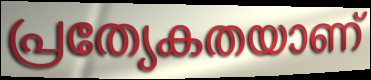
പ്രത്യേകതയാണ്